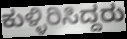
ಕುಳ್ಳಿರಿಸಿದ್ದರು